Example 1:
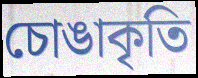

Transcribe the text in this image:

চোঙাকৃতি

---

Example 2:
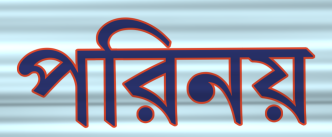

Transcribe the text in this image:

পরিনয়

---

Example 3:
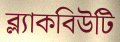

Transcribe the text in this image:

ব্ল্যাকবিউটি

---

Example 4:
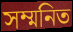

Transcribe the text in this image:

সম্মনিত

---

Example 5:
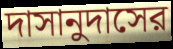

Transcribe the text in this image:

দাসানুদাসের